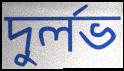
দুর্লভ